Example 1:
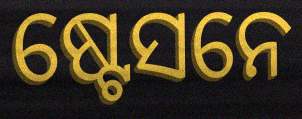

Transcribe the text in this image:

ଷ୍ଟେସନେ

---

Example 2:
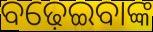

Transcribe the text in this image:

ବଢ଼େଇବାଙ୍କ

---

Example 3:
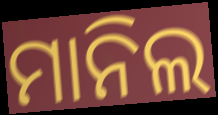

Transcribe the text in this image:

ମାନିଲ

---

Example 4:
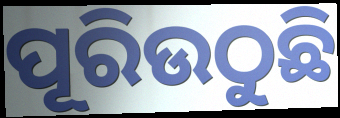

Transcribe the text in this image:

ପୂରିଉଠୁଛି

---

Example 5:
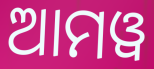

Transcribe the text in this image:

ଆମୱ